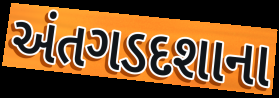
અંતગડદશાના